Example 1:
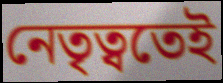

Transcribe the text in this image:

নেতৃত্বতেই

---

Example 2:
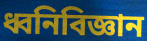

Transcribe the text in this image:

ধ্বনিবিজ্ঞান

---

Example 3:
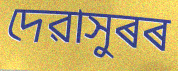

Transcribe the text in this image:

দেৱাসুৰৰ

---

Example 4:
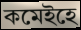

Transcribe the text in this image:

কমেইহে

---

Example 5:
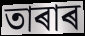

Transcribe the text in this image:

তাৰাৰ